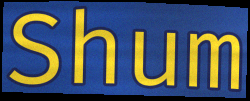
Shum